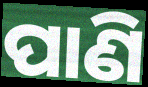
ପାଣି